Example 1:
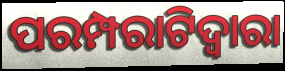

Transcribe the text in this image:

ପରମ୍ପରାଟିଦ୍ୱାରା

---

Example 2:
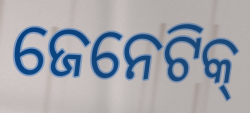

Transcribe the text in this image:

ଜେନେଟିକ୍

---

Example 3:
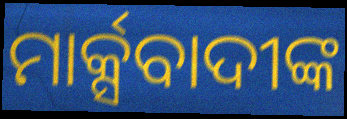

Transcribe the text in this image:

ମାର୍କ୍ସବାଦୀଙ୍କ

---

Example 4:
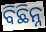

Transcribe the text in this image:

ବିଛିନ୍ନ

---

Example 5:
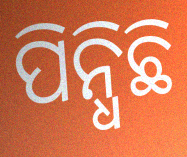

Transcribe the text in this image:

ପିନ୍ଧିଛି